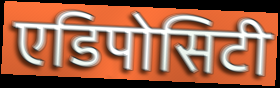
एडिपोसिटी